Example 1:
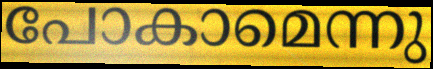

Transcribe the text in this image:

പോകാമെന്നു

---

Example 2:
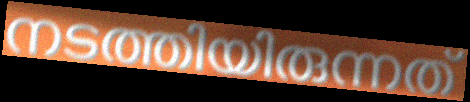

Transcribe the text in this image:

നടത്തിയിരുന്നത്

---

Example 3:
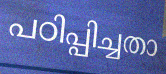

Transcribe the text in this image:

പഠിപ്പിച്ചതാ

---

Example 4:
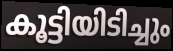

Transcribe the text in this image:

കൂട്ടിയിടിച്ചും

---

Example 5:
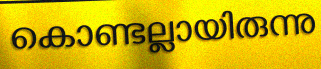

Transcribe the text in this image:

കൊണ്ടല്ലായിരുന്നു